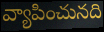
వ్యాపించునది